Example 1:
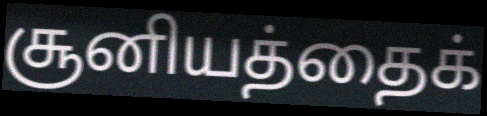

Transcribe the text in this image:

சூனியத்தைக்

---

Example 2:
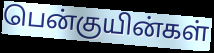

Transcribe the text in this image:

பென்குயின்கள்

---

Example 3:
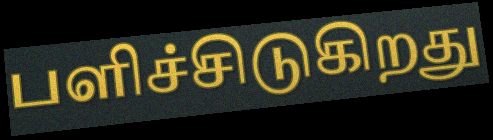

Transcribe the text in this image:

பளிச்சிடுகிறது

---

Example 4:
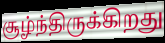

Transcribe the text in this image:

சூழ்ந்திருக்கிறது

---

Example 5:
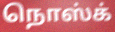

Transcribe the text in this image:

நொஸ்க்